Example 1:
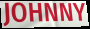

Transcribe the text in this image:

JOHNNY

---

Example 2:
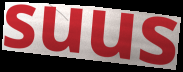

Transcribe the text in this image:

suus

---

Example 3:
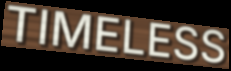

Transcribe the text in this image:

TIMELESS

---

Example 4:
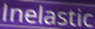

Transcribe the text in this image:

Inelastic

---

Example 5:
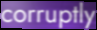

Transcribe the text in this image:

corruptly